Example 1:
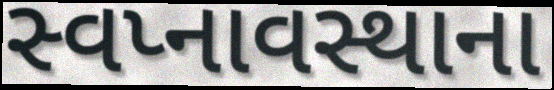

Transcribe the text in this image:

સ્વપ્નાવસ્થાના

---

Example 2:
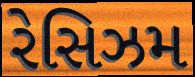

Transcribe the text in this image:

રેસિઝમ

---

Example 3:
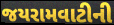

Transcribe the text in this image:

જયરામવાટીની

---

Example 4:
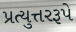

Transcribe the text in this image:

પ્રત્યુત્તરરૂપે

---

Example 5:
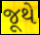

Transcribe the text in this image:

જૂથે